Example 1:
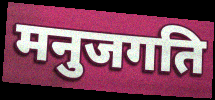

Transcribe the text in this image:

मनुजगति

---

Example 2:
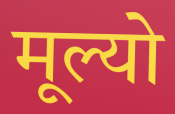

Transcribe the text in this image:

मूल्यो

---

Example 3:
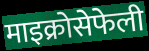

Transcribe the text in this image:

माइक्रोसेफेली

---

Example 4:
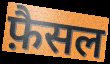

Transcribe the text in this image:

फ़ैसल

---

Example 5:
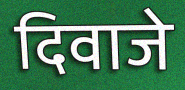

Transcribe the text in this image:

दिवाजे